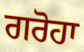
ਗਰੋਹਾ